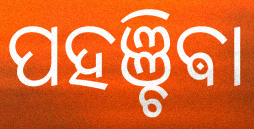
ପହଞ୍ଚିଵା